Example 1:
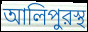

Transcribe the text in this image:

আলিপুরস্থ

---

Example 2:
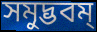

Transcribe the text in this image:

সমুদ্ভবম্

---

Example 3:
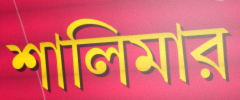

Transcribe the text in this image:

শালিমার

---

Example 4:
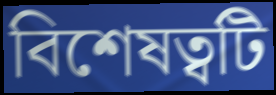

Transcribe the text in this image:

বিশেষত্বটি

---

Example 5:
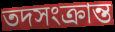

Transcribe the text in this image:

তদসংক্রান্ত